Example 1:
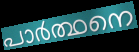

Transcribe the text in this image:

പാർത്ഥനെ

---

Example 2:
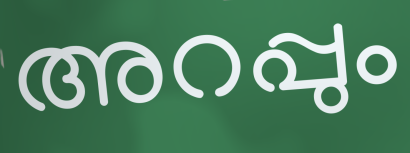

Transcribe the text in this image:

അറപ്പും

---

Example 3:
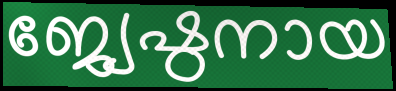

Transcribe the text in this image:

ജ്യേഷ്ഠനായ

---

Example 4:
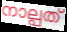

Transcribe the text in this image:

നാല്പത്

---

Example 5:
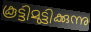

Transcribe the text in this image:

കൂട്ടിമുട്ടിക്കുന്നു